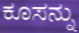
ಕೂಸನ್ನು